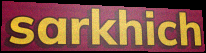
sarkhich